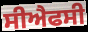
ਸੀਐਫਸੀ